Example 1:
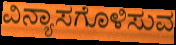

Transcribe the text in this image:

ವಿನ್ಯಾಸಗೊಳಿಸುವ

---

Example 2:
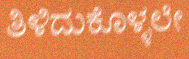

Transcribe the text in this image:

ತಿಳಿದುಕೊಳ್ಳಲೇ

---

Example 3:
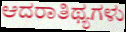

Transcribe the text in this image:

ಆದರಾತಿಥ್ಯಗಳು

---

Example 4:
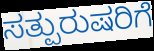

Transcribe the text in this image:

ಸತ್ಪುರುಷರಿಗೆ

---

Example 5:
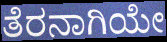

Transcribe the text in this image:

ತೆರನಾಗಿಯೇ